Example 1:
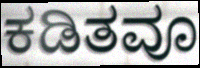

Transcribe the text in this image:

ಕಡಿತವೂ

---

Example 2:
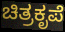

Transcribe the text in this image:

ಚಿತ್ರಕೃಪೆ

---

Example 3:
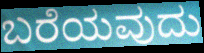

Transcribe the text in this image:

ಬರೆಯವುದು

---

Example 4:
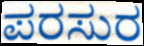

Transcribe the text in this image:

ಪರಸುರ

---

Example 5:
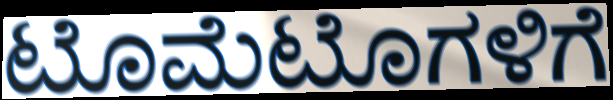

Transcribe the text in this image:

ಟೊಮೆಟೊಗಳಿಗೆ